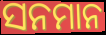
ସନମାନ